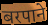
बरपाने